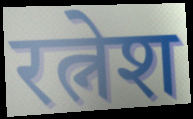
रत्नेश